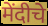
मेंदीचे